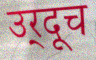
उर्दूच